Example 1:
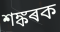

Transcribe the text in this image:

শঙ্কৰক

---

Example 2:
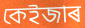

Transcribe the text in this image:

কেইজাৰ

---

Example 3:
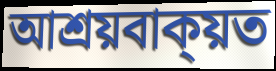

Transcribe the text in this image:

আশ্ৰয়বাক্য়ত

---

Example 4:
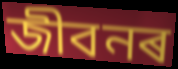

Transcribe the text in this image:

জীবনৰ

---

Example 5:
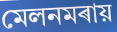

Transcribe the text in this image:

মেলনমৰায়